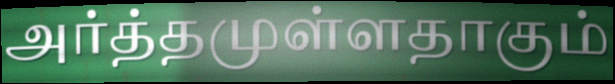
அர்த்தமுள்ளதாகும்